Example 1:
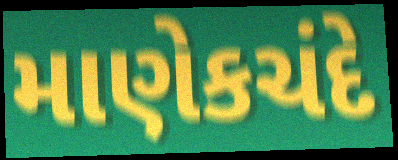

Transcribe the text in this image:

માણેકચંદે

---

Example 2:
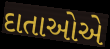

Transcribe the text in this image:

દાતાઓએ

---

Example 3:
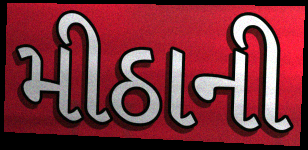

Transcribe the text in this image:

મીઠાની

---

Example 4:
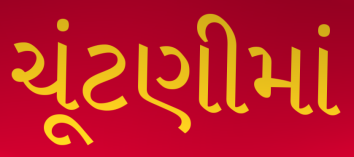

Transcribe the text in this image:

ચૂંટણીમાં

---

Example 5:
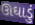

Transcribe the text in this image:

ઊઘાડું